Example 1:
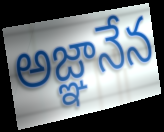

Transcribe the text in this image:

అజ్ఞానేన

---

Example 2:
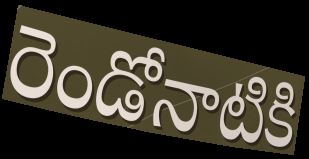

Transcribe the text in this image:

రెండోనాటికి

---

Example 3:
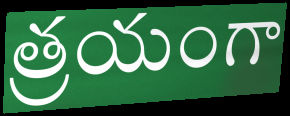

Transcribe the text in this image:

త్రయంగా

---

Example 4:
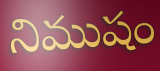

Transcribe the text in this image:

నిముషం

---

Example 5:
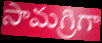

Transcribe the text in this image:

సామగ్రిగా